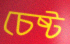
চেষ্ট